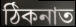
ঠিকনাত